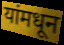
यांमधून